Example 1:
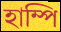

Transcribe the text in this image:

হাম্পি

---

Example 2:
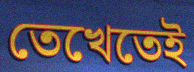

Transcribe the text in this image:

তেখেতেই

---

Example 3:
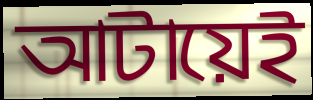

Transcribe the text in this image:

আটায়েই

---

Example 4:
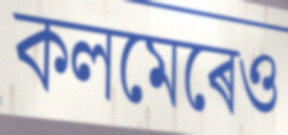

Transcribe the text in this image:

কলমেৰেও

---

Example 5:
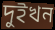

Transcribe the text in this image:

দুইখন